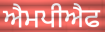
ਐਮਪੀਐਫ